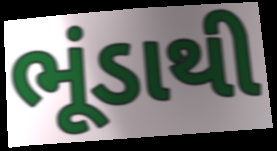
ભૂંડાથી